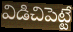
విడిచిపెట్టే